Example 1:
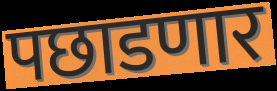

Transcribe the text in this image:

पछाडणार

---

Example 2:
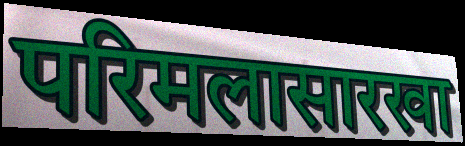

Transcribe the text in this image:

परिमलासारखा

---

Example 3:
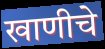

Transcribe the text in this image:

खाणीचे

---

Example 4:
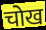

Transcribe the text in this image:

चोख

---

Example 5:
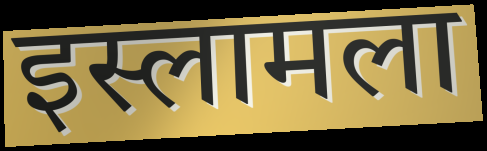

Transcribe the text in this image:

इस्लामला